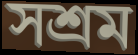
সশ্রম